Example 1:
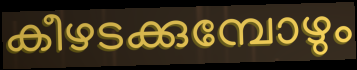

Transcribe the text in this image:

കീഴടക്കുമ്പോഴും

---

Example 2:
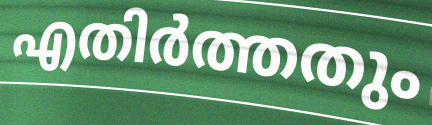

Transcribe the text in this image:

എതിർത്തതും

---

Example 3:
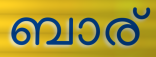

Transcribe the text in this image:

ബാര്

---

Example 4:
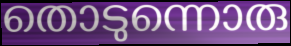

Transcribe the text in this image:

തൊടുന്നൊരു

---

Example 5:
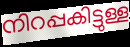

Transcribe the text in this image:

നിറപ്പകിട്ടുള്ള